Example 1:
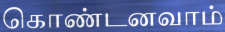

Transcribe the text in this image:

கொண்டனவாம்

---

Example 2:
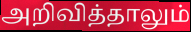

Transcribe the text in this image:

அறிவித்தாலும்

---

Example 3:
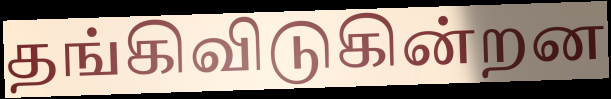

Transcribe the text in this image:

தங்கிவிடுகின்றன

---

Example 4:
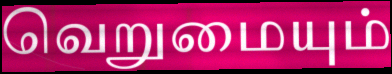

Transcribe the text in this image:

வெறுமையும்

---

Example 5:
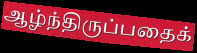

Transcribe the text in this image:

ஆழ்ந்திருப்பதைக்